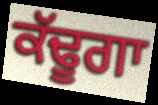
ਕੱਢੂਗਾ